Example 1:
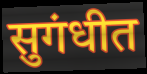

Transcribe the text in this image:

सुगंधीत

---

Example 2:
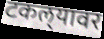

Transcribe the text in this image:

टकल्यावर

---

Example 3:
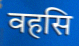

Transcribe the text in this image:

वहसि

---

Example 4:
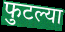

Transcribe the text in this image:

फुटल्या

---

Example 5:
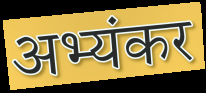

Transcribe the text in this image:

अभ्यंकर